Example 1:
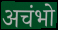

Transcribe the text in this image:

अचंभो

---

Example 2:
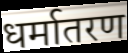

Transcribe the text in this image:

धर्मातरण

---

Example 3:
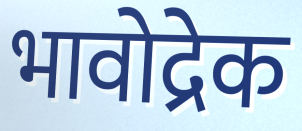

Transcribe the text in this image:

भावोद्रेक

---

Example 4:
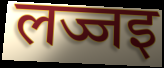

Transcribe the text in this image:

लज्जइ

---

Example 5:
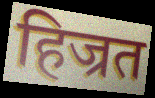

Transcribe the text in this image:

हिज्रत